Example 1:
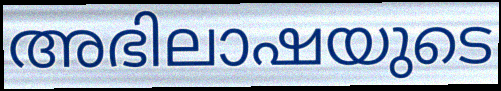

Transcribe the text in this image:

അഭിലാഷയുടെ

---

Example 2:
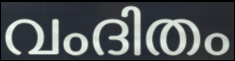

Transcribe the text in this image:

വംദിതം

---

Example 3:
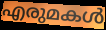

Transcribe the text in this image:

എരുമകൾ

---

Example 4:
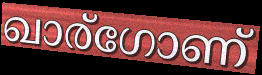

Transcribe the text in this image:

ഖാര്ഗോണ്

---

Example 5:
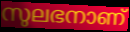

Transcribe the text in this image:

സുലഭനാണ്